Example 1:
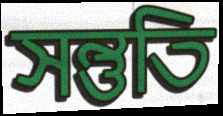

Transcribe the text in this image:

সন্তুতি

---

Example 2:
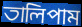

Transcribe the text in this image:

তালিপাম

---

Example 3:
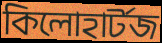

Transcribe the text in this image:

কিলোহার্টজ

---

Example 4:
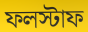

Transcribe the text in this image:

ফলস্টাফ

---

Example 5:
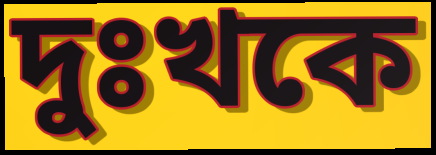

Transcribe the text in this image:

দুঃখকে